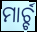
ମାର୍ଚ୍ଚ